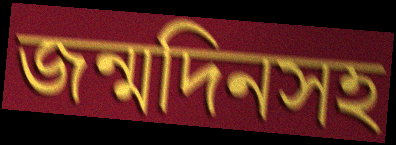
জন্মদিনসহ